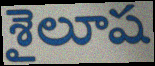
శైలూష